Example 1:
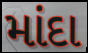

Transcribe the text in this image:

માંદા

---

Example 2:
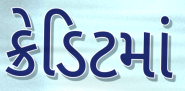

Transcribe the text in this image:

ક્રેડિટમાં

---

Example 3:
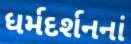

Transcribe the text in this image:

ધર્મદર્શનનાં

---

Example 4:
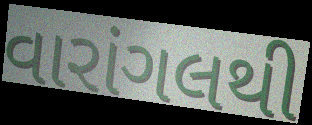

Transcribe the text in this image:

વારાંગલથી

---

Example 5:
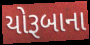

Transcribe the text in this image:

યોરૂબાના